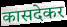
कासदेकर